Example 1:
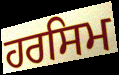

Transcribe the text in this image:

ਹਰਸਿਮ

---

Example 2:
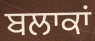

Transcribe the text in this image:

ਬਲਾਕਾਂ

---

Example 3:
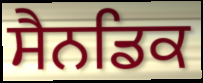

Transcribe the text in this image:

ਸੈਨਡਿਕ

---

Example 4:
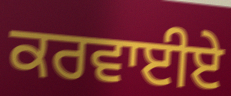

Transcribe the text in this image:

ਕਰਵਾਈਏ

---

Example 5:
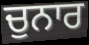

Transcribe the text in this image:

ਚੁਨਾਰ